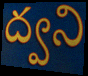
ద్వని